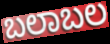
ಬಲಾಬಲ